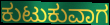
ಕುಟುಕುವಾಗ